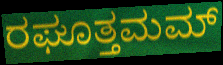
ರಘೂತ್ತಮಮ್